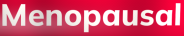
Menopausal